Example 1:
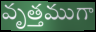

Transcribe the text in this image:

వృత్తముగా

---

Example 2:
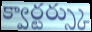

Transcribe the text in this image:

క్వార్టర్స్కు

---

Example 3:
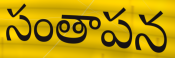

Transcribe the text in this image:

సంతాపన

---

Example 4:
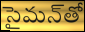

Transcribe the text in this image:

సైమన్‌తో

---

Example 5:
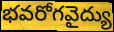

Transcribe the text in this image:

భవరోగవైద్యు